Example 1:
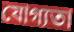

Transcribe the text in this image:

যোগ্যতা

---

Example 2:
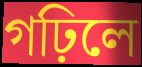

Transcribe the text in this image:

গঢ়িলে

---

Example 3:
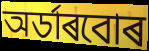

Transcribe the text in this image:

অৰ্ডাৰবোৰ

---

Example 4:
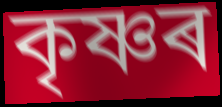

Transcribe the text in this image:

কৃষ্ণৰ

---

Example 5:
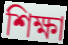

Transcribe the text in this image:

শিক্ষা